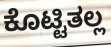
ಕೊಟ್ಟಿತಲ್ಲ